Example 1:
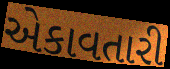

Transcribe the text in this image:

એકાવતારી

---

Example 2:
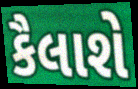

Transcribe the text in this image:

કૈલાશે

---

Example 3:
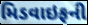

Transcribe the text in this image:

મિડવાઇફની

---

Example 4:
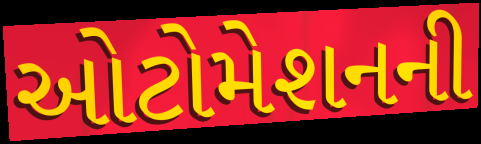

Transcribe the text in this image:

ઓટોમેશનની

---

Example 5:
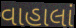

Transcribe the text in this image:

વાહાલાં